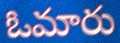
ఓమారు